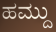
ಹಮ್ದು